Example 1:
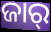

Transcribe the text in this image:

ଜାର୍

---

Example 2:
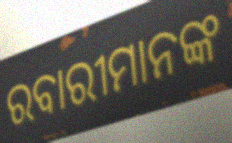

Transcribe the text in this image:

ରବାରୀମାନଙ୍କ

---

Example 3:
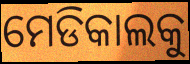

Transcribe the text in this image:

ମେଡିକାଲକୁ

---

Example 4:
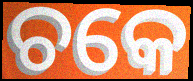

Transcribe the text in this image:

ଚକେ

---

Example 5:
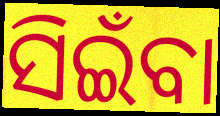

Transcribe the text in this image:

ସିଇଁବା